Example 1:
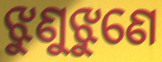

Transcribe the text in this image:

ଝୁଣୁଝୁଣେ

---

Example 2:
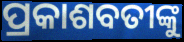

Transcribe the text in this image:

ପ୍ରକାଶବତୀଙ୍କୁ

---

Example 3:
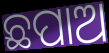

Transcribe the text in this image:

ଛପାଅ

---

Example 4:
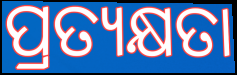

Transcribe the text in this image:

ପ୍ରତ୍ୟକ୍ଷତା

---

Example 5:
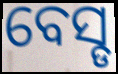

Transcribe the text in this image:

ବେସ୍ଡ